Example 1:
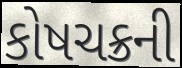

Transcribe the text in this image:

કોષચક્રની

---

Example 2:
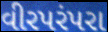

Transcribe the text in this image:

વીરપરંપરા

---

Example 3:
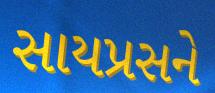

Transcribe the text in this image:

સાયપ્રસને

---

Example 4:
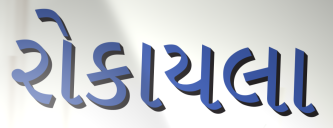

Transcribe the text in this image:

રોકાયલા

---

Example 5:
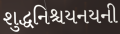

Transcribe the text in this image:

શુદ્ધનિશ્ચયનયની